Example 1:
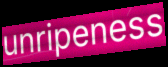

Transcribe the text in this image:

unripeness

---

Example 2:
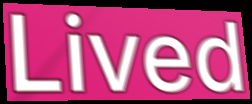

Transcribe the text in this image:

Lived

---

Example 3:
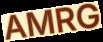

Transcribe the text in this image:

AMRG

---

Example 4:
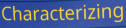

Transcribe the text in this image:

Characterizing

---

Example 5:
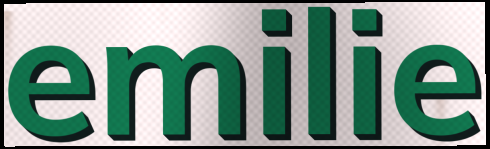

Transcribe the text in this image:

emilie